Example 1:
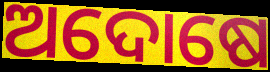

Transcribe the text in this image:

ଅଦୋଷେ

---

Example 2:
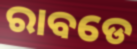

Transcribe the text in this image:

ରାବଡେ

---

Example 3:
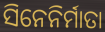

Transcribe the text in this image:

ସିନେନିର୍ମାତା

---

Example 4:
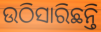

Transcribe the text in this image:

ଉଠିସାରିଛନ୍ତି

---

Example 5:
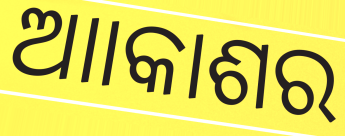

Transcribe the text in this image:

ଆାକାଶର